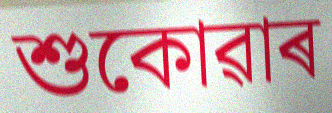
শুকোৱাৰ